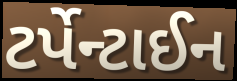
ટર્પેન્ટાઈન